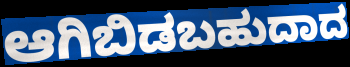
ಆಗಿಬಿಡಬಹುದಾದ